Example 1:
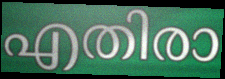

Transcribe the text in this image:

എതിരാ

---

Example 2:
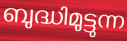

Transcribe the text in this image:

ബുദ്ധിമുട്ടുന്ന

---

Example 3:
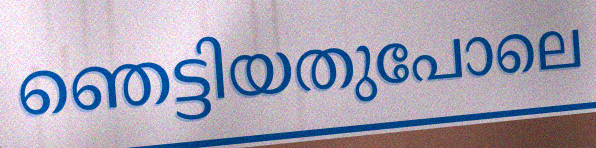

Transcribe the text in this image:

ഞെട്ടിയതുപോലെ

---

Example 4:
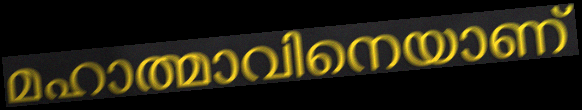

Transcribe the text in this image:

മഹാത്മാവിനെയാണ്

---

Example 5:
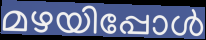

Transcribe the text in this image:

മഴയിപ്പോൾ